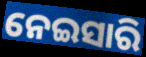
ନେଇସାରି